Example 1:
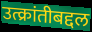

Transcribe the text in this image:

उत्क्रांतीबद्दल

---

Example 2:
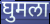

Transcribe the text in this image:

घुमला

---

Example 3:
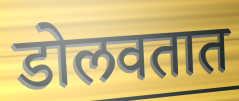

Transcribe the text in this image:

डोलवतात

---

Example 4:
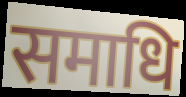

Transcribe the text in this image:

समाधि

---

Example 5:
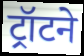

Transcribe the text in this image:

ट्रॉटने